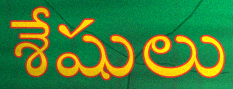
శేషులు